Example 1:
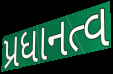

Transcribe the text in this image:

પ્રધાનત્વ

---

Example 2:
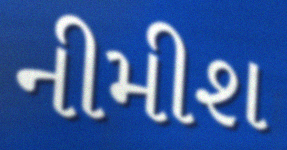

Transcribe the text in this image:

નીમીશ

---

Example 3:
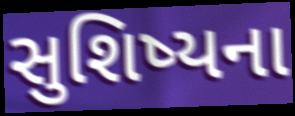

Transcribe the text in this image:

સુશિષ્યના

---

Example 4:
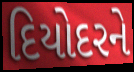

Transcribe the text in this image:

દિયોદરને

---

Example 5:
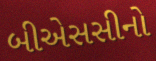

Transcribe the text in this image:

બીએસસીનો